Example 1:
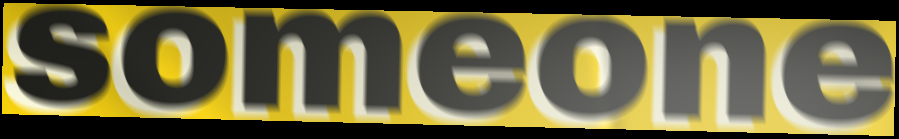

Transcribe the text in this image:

someone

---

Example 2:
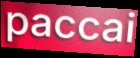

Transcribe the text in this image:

paccai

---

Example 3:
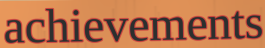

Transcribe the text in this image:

achievements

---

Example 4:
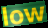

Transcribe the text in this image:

low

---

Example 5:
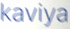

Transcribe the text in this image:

kaviya